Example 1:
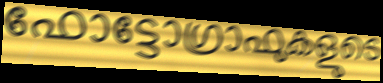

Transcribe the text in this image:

ഫോട്ടോഗ്രാഫുകളുടെ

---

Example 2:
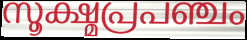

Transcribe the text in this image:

സൂക്ഷ്മപ്രപഞ്ചം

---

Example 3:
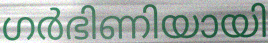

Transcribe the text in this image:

ഗർഭിണിയായി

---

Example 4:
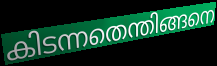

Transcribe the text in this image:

കിടന്നതെന്തിങ്ങനെ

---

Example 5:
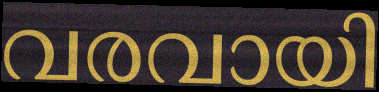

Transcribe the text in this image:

വരവായി